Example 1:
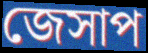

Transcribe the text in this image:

জেসাপ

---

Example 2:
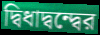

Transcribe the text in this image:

দ্বিধাদ্বন্দ্বের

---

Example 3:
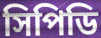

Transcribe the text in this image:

সিপিডি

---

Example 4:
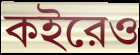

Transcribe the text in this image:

কইরেও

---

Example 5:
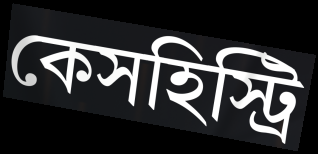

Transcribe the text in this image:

কেসহিস্ট্রি